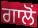
ਗਾਲੋਂ